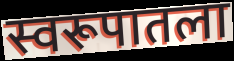
स्वरूपातला